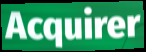
Acquirer